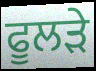
ਫੂਲੜੇ